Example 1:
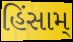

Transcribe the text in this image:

હિંસામ્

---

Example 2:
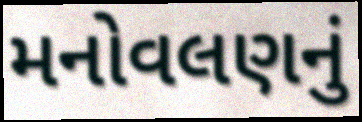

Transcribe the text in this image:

મનોવલણનું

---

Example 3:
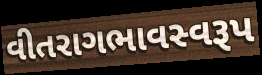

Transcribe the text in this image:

વીતરાગભાવસ્વરૂપ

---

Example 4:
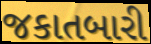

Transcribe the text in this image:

જકાતબારી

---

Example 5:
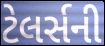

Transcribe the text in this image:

ટેલર્સની